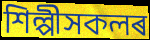
শিল্পীসকলৰ